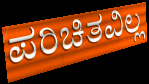
ಪರಿಚಿತವಿಲ್ಲ